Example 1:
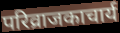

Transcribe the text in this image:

परिव्राजकाचार्य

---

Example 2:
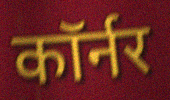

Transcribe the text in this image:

कॉर्नर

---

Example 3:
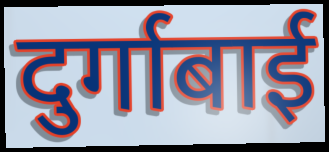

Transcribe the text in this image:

दुर्गाबाई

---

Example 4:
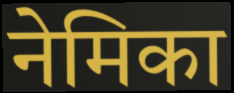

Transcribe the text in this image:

नेमिका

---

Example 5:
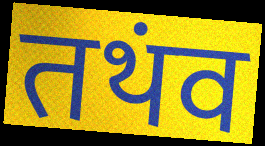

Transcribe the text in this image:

तथंव